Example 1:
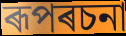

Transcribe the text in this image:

ৰূপৰচনা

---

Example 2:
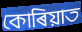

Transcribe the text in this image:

কোৰিয়াত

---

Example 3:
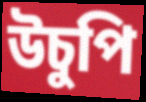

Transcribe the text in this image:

উচুপি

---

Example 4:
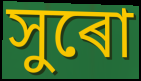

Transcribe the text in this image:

সুৰো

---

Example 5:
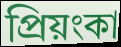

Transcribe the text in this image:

প্ৰিয়ংকা